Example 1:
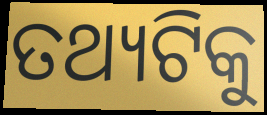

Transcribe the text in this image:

ତଥ୍ୟଟିକୁ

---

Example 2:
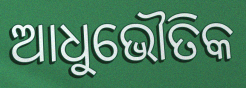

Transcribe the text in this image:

ଆଧୁଭୌତିକ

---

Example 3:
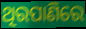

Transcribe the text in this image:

ଥିରପାଣିରେ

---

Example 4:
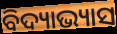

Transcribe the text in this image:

ବିଦ୍ୟାଭ୍ୟାସ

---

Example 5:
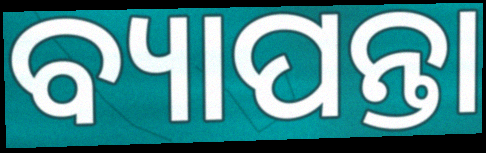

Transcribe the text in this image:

ବ୍ୟାପନ୍ତା